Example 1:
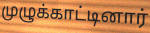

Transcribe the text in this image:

முழுக்காட்டினார்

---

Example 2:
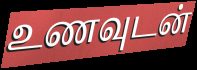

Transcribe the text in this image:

உணவுடன்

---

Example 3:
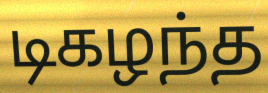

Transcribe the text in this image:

டிகழந்த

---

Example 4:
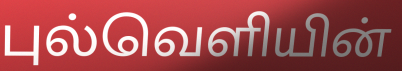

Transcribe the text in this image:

புல்வெளியின்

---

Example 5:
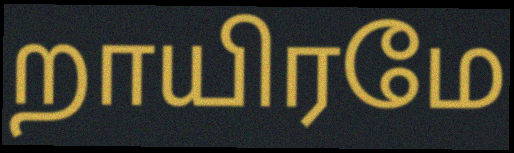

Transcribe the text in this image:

றாயிரமே